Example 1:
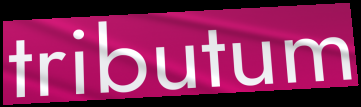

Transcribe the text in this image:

tributum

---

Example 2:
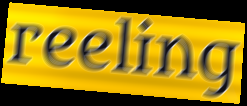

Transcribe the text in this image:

reeling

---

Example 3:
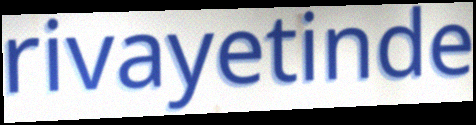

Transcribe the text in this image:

rivayetinde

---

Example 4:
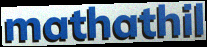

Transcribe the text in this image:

mathathil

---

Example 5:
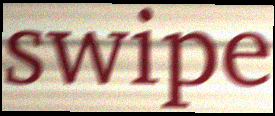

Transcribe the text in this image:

swipe